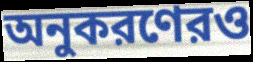
অনুকরণেরও